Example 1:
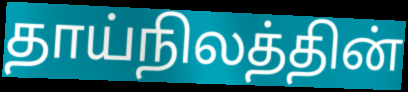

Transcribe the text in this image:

தாய்நிலத்தின்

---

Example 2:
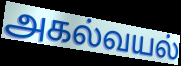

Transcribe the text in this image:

அகல்வயல்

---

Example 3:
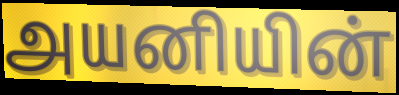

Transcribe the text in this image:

அயனியின்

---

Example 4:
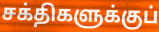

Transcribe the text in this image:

சக்திகளுக்குப்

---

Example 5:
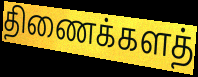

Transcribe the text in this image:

திணைக்களத்